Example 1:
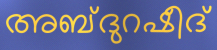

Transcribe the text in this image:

അബ്ദുറഷീദ്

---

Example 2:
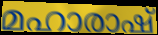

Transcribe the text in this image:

മഹാരാഷ്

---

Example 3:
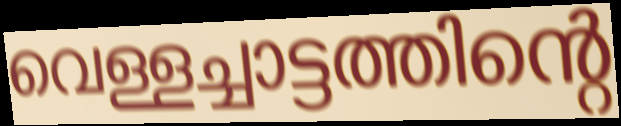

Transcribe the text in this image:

വെള്ളച്ചാട്ടത്തിന്റെ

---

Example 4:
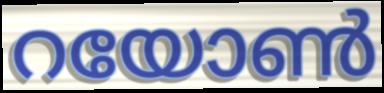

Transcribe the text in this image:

റയോൺ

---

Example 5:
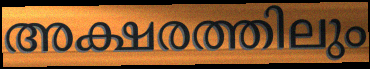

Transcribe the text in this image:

അക്ഷരത്തിലും